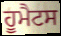
ਹੂਮੈਟਸ